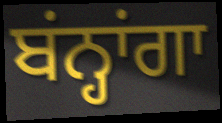
ਬਂਨ੍ਹਾਂਗਾ